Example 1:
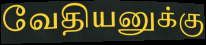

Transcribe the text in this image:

வேதியனுக்கு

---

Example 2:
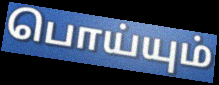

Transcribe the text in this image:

பொய்யும்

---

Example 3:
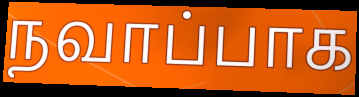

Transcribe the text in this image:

நவாப்பாக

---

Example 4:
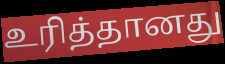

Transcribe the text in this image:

உரித்தானது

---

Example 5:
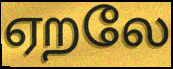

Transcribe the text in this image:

ஏறலே